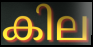
കില